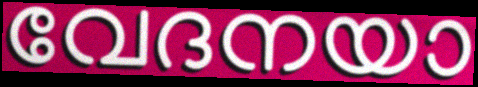
വേദനയാ